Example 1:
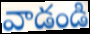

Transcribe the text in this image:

వాడండి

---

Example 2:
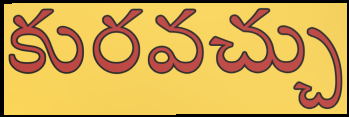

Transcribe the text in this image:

కురవచ్చు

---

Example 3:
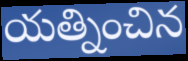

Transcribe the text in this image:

యత్నించిన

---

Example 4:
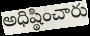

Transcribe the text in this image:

అధిష్ఠించారు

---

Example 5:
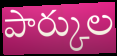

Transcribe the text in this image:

పార్కుల